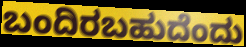
ಬಂದಿರಬಹುದೆಂದು